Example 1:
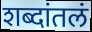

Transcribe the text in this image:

शब्दांतलं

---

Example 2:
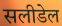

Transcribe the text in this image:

सलीडेल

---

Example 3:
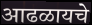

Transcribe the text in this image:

आढळायचे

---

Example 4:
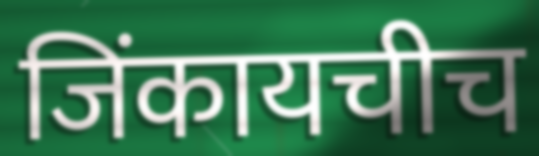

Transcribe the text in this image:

जिंकायचीच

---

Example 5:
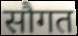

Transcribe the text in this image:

सौगत